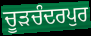
ਚੂੜਚੰਦਰਪੁਰ